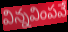
విన్నవింపవే